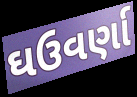
ઘઉવર્ણા